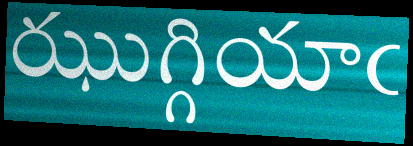
ఝుగ్గియాఁ